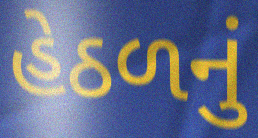
હેઠળનું